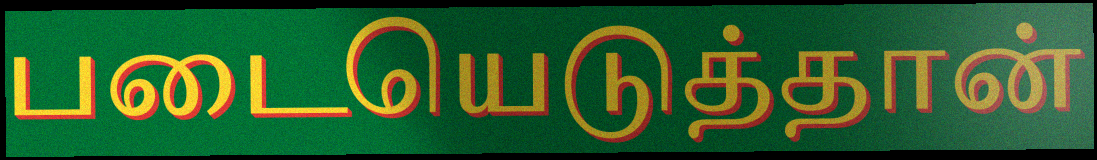
படையெடுத்தான்